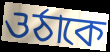
ওঠাকে